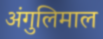
अंगुलिमाल